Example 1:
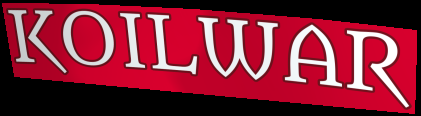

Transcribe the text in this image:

KOILWAR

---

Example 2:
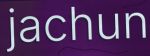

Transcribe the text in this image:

jachun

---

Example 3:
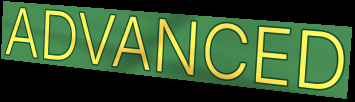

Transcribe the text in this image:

ADVANCED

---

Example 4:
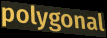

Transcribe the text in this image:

polygonal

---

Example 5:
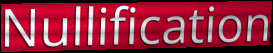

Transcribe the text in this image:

Nullification